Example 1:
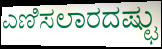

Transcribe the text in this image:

ಎಣಿಸಲಾರದಷ್ಟು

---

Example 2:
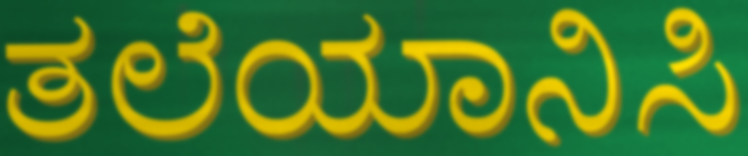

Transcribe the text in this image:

ತಲೆಯಾನಿಸಿ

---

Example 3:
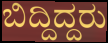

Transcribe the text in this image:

ಬಿದ್ದಿದ್ದರು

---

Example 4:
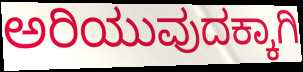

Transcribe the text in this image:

ಅರಿಯುವುದಕ್ಕಾಗಿ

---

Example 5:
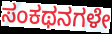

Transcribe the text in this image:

ಸಂಕಥನಗಳೇ